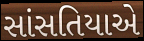
સાંસતિયાએ